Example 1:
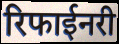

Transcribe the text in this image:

रिफाईनरी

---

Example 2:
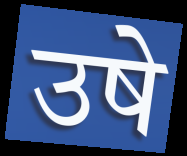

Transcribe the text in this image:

उषे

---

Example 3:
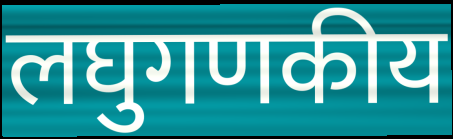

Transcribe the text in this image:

लघुगणकीय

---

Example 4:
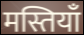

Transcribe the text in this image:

मस्तियाँ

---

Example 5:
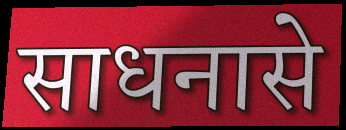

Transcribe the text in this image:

साधनासे